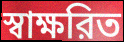
স্বাক্ষরিত